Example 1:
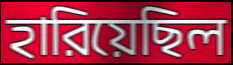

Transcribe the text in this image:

হারিয়েছিল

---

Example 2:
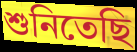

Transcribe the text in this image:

শুনিতেছি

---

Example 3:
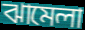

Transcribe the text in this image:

ঝামেলা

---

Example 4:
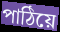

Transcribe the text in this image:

পাঠিয়ে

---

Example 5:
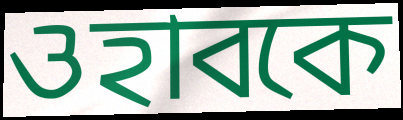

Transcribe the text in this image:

ওহাবকে